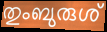
തുംബുരുശ്